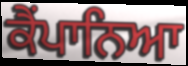
ਕੈਂਪਾਨਿਆ